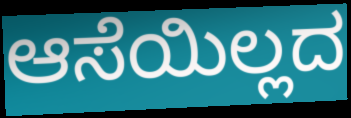
ಆಸೆಯಿಲ್ಲದ